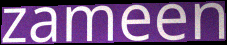
zameen